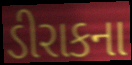
ડીરાકના